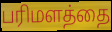
பரிமளத்தை